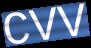
CVV